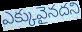
ఎక్కువైనదని